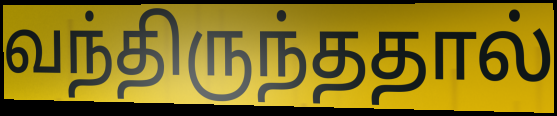
வந்திருந்ததால்